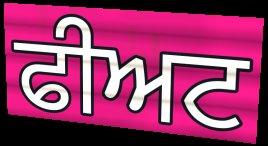
ਫੀਅਟ